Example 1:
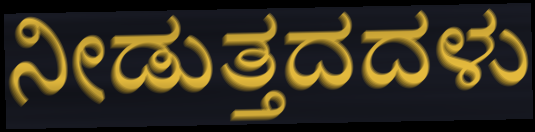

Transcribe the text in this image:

ನೀಡುತ್ತದದಳು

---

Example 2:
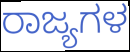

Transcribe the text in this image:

ರಾಜ್ಯಗಳ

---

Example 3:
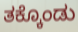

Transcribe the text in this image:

ತಕ್ಕೊಂಡು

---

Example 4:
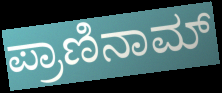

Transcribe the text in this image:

ಪ್ರಾಣಿನಾಮ್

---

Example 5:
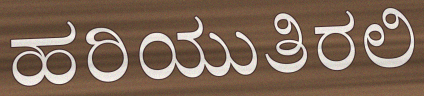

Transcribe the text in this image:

ಹರಿಯುತಿರಲಿ